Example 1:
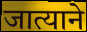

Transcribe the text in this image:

जात्याने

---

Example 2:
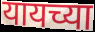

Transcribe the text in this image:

यायच्या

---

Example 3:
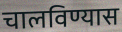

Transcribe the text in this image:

चालविण्यास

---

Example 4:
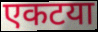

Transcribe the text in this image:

एकटया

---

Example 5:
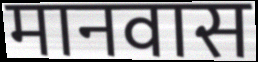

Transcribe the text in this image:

मानवास